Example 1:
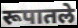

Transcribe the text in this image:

रूपातले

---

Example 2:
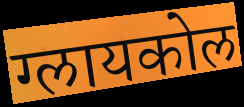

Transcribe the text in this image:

ग्लायकोल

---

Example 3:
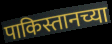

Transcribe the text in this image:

पाकिस्तानच्या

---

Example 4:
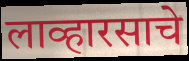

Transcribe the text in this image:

लाव्हारसाचे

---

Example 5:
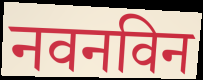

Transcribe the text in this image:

नवनविन